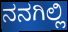
ನನಗಿಲ್ಲಿ